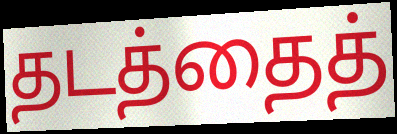
தடத்தைத்